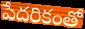
పేదరికంతో